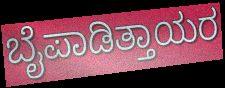
ಬೈಪಾಡಿತ್ತಾಯರ